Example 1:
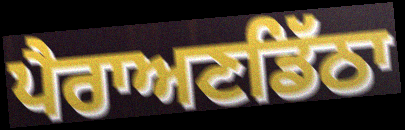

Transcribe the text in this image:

ਪੈਰਾਅਣਡਿੱਠਾ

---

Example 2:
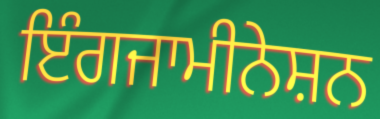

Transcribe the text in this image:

ਇੰਗਜਾਮੀਨੇਸ਼ਨ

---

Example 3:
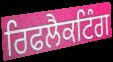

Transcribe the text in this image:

ਰਿਫਲੈਕਟਿੰਗ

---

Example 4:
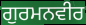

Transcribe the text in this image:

ਗੁਰਮਨਵੀਰ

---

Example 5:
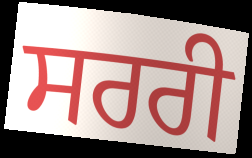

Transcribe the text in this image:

ਸਰਰੀ